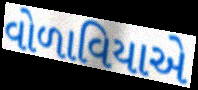
વોળાવિયાએ